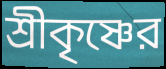
শ্রীকৃষ্ণের